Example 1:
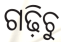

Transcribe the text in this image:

ଗଢ଼ିଚୁ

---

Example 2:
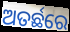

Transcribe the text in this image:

ଅତର୍ଛରେ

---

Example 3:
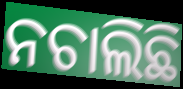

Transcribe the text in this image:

ନଚାଲିଛି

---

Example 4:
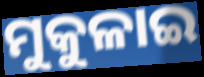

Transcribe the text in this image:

ମୁକୁଳାଇ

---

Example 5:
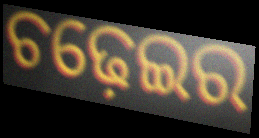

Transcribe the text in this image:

ଚଢ଼େଇର